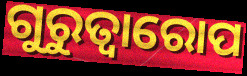
ଗୁରୁତ୍ୱାରୋପ